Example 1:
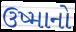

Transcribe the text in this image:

ઉષ્માનો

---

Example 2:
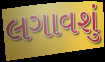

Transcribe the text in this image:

લગાવશું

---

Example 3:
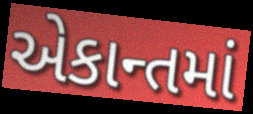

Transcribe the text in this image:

એકાન્તમાં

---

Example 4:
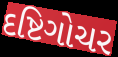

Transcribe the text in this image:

દષ્ટિગોચર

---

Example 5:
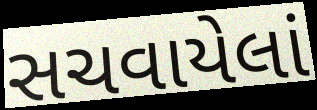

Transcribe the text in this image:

સચવાયેલાં